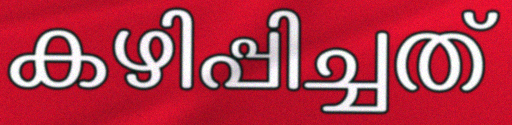
കഴിപ്പിച്ചത്